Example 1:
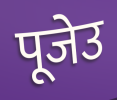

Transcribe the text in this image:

पूजेउ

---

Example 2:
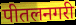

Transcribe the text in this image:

पीतलनगरी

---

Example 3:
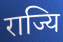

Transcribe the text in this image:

राज्यि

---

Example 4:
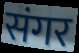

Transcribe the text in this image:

संगर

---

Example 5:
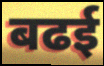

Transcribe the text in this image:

बढई